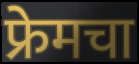
फ्रेमचा